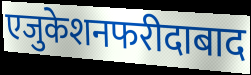
एजुकेशनफरीदाबाद